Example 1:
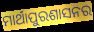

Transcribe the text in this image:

ମାର୍ଥାପୁରଶାସନର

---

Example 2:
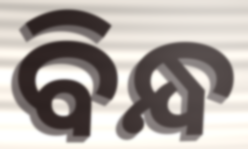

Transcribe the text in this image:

ବିନ୍ଧ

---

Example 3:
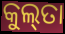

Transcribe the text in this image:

କୁଲ୍‌ତା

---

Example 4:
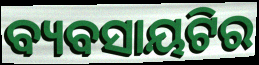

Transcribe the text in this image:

ବ୍ୟବସାୟଟିର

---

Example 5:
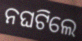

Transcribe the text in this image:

ନଘଟିଲେ